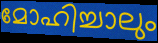
മോഹിച്ചാലും